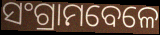
ସଂଗ୍ରାମବେଳେ